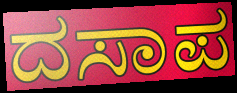
ದಸಾಪ